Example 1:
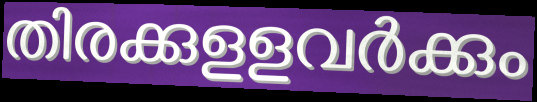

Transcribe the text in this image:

തിരക്കുളളവർക്കും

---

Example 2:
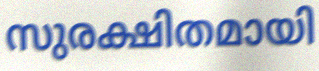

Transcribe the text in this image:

സുരക്ഷിതമായി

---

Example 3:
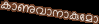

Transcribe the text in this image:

കാണുവാനാകുമോ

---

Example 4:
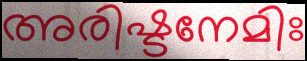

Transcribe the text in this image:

അരിഷ്ടനേമിഃ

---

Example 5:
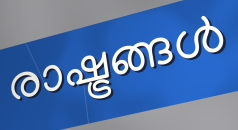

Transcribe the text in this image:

രാഷ്ട്രങ്ങൾ